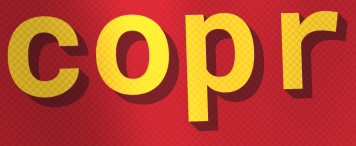
copr